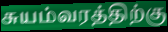
சுயம்வரத்திற்கு